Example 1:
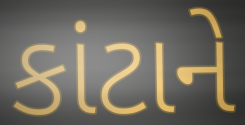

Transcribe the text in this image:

કાંટાને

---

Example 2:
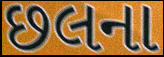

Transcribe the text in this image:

છલના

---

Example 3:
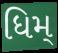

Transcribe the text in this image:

ધિમ્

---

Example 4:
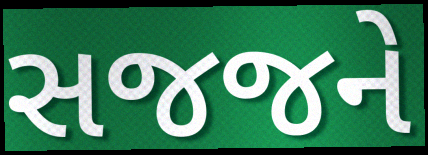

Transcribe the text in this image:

સજજને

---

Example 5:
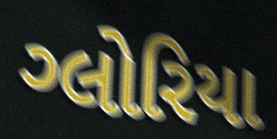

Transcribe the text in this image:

ગ્લોરિયા